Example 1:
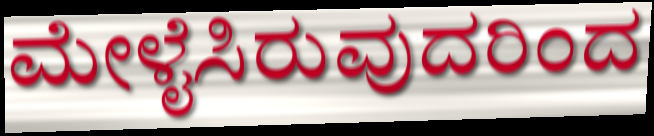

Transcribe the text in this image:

ಮೇಳೈಸಿರುವುದರಿಂದ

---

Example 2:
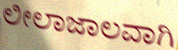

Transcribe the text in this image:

ಲೀಲಾಜಾಲವಾಗಿ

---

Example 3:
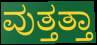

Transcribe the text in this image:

ವುತ್ತತ್ತಾ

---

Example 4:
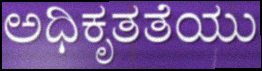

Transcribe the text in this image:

ಅಧಿಕೃತತೆಯು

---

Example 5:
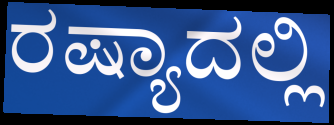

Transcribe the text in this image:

ರಷ್ಯಾದಲ್ಲಿ